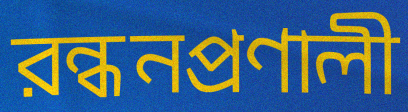
রন্ধনপ্রণালী